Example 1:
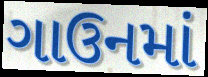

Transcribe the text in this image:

ગાઉનમાં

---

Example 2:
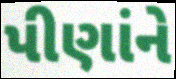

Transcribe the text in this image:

પીણાંને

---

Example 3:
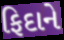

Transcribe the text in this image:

ફિદાને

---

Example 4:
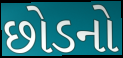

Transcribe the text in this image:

છોડનો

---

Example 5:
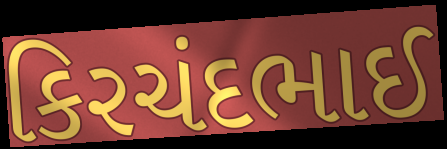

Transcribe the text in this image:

કિરચંદભાઈ